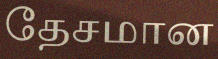
தேசமான